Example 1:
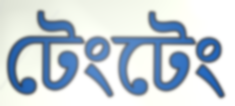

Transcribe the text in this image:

টেংটেং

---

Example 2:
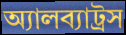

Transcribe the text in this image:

অ্যালব্যাট্রস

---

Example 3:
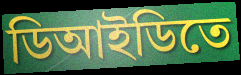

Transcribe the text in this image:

ডিআইডিতে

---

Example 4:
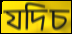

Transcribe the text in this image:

যদিচ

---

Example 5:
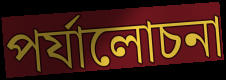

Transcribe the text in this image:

পর্যালোচনা